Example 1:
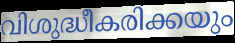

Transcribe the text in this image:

വിശുദ്ധീകരിക്കയും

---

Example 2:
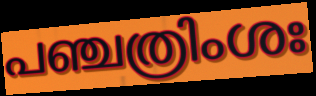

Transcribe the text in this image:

പഞ്ചത്രിംശഃ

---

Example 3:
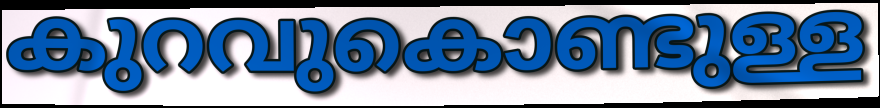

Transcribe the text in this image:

കുറവുകൊണ്ടുള്ള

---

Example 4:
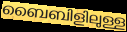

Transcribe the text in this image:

ബൈബിളിലുള്ള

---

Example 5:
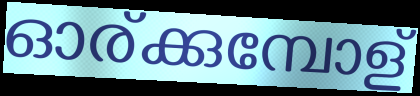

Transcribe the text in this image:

ഓര്ക്കുമ്പോള്